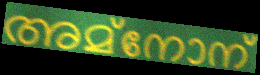
അമ്നോന്